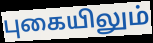
புகையிலும்